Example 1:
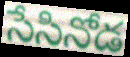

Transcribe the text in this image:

సేసినోడ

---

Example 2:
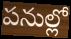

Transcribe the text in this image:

పనుల్లో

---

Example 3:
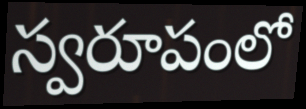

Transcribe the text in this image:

స్వరూపంలో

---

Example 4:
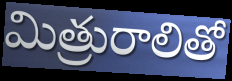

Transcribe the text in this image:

మిత్రురాలితో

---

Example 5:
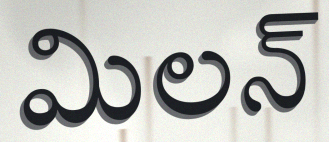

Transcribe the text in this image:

మిలన్